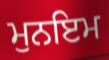
ਮੁਨਇਮ